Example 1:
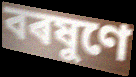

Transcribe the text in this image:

বৰষুণে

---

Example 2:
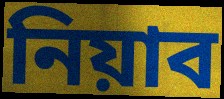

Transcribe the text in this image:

নিয়াব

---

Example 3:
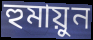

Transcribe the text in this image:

হুমায়ুন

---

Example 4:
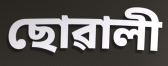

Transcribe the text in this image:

ছোৱালী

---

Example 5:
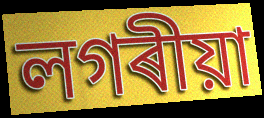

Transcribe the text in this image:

লগৰীয়া